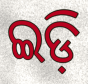
ଇଡ଼ି